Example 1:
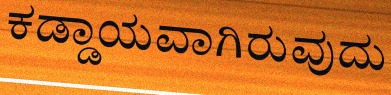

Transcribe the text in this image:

ಕಡ್ಡಾಯವಾಗಿರುವುದು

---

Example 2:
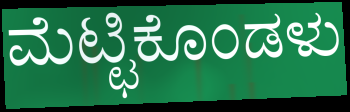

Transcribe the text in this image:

ಮೆಟ್ಟಿಕೊಂಡಳು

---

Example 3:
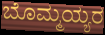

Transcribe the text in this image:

ಬೊಮ್ಮಯ್ಯರ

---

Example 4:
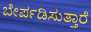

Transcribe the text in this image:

ಬೇರ್ಪಡಿಸುತ್ತಾರೆ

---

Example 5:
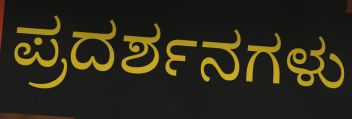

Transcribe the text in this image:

ಪ್ರದರ್ಶನಗಳು